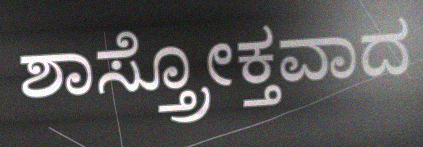
ಶಾಸ್ತ್ರೋಕ್ತವಾದ